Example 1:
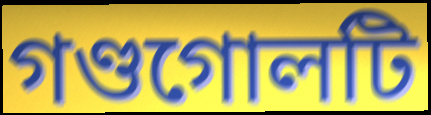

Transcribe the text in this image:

গণ্ডগোলটি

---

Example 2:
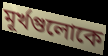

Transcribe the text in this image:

মূর্খগুলোকে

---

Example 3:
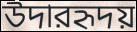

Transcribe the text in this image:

উদারহৃদয়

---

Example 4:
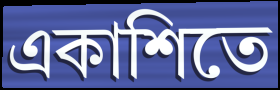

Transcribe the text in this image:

একাশিতে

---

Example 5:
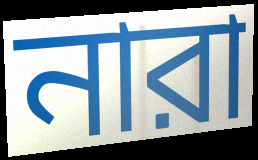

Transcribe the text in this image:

নারা